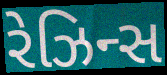
રેઝિન્સ